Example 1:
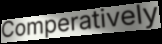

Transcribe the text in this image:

Comperatively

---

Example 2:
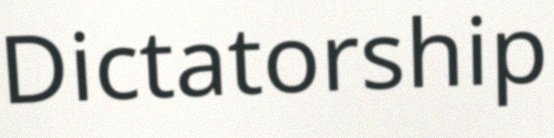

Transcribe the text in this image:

Dictatorship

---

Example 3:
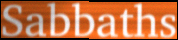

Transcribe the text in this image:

Sabbaths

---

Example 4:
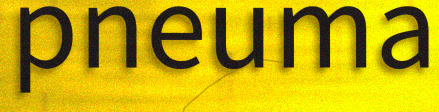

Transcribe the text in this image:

pneuma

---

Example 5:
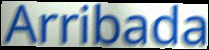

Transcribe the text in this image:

Arribada